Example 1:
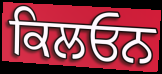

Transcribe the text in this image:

ਕਿਲਓਨ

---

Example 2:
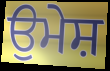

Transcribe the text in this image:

ਉਮੇਸ਼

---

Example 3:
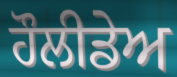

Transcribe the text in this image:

ਹੌਲੀਡੇਅ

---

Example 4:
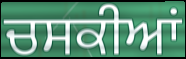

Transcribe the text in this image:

ਚਸਕੀਆਂ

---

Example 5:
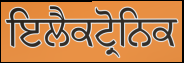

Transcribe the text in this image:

ਇਲੈਕਟ੍ਰੋਨਿਕ